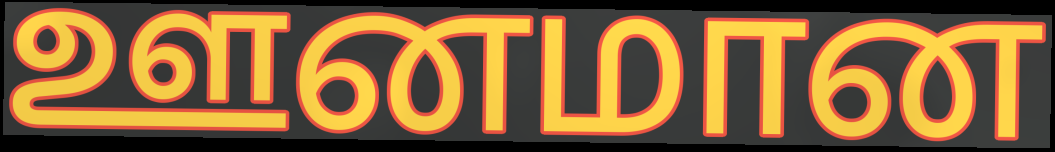
ஊனமான